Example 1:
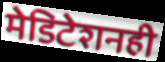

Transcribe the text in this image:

मेडिटेशनही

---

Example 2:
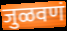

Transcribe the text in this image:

जुळवणं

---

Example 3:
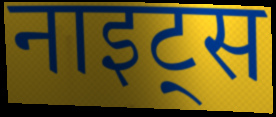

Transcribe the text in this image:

नाइट्‌स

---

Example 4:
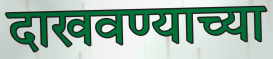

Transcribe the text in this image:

दाखवण्याच्या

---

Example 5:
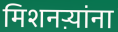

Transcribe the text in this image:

मिशनऱ्‍यांना